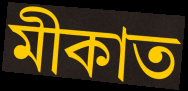
মীকাত